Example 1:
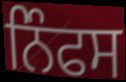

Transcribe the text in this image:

ਨਿੰਫਸ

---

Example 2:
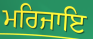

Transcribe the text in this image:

ਮਰਿਜਾਇ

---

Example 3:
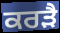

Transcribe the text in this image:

ਕਰੜੈ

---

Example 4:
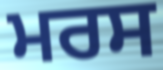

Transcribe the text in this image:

ਮਰਸ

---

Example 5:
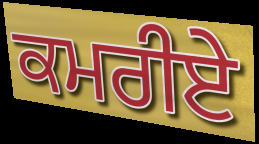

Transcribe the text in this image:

ਕਮਰੀਏ